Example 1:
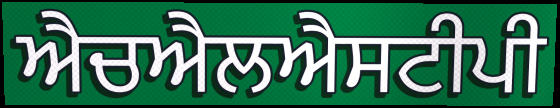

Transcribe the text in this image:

ਐਚਐਲਐਸਟੀਪੀ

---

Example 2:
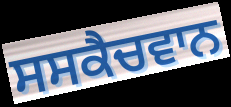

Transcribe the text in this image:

ਸਸਕੈਚਵਾਨ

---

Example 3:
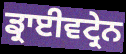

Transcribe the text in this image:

ਡ੍ਰਾਈਵਟ੍ਰੇਨ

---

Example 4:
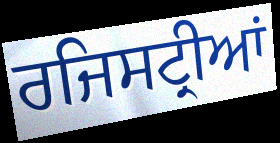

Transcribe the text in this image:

ਰਜਿਸਟ੍ਰੀਆਂ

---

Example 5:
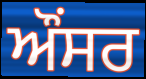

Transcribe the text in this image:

ਔਂਸਰ